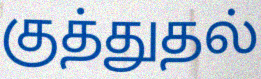
குத்துதல்